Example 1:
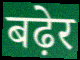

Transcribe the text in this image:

बढ़ेर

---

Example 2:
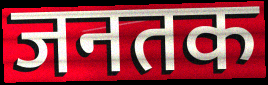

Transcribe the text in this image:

जनतक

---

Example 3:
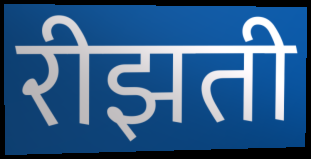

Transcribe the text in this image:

रीझती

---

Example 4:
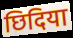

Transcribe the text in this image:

छिदिया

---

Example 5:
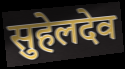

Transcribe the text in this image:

सुहेलदेव